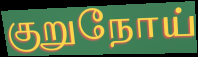
குறுநோய்